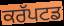
ਕਰੱਪਟਡ